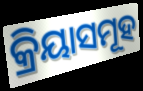
କ୍ରିୟାସମୂହ